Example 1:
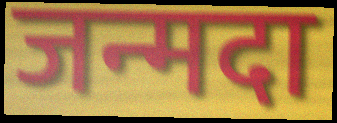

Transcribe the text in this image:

जन्मदा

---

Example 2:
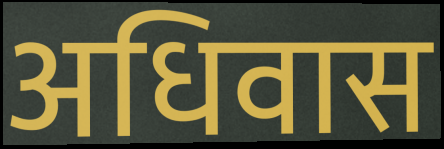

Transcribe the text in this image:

अधिवास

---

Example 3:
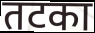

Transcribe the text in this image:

तटका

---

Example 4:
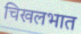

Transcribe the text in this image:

चिखलभात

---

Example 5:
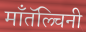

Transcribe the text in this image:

माँतॅल्चिनी